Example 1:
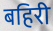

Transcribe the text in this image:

बहिरी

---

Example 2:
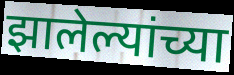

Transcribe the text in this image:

झालेल्यांच्या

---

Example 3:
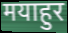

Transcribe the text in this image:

मयाहुर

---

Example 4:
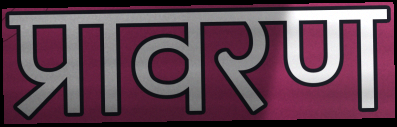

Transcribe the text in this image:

प्रावरण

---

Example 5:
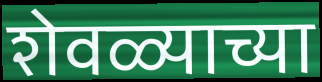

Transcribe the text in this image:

शेवळ्याच्या